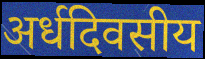
अर्धदिवसीय